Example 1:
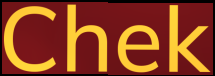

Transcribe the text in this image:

Chek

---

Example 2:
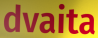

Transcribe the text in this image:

dvaita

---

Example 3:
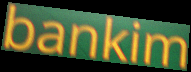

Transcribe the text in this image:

bankim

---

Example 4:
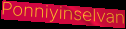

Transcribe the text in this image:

Ponniyinselvan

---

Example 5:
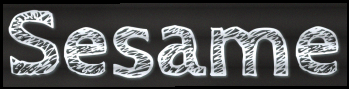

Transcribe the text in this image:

Sesame